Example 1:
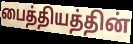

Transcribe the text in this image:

பைத்தியத்தின்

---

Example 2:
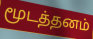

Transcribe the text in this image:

மூடத்தனம்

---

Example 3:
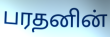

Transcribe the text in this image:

பரதனின்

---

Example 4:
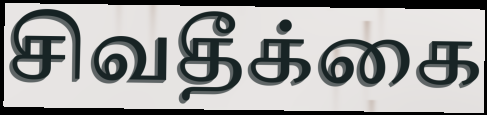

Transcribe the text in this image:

சிவதீக்கை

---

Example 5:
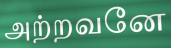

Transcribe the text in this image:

அற்றவனே